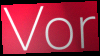
Vor